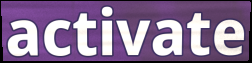
activate